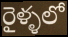
రైళ్ళలో